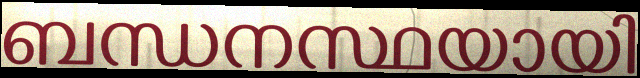
ബന്ധനസ്ഥയായി